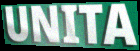
UNITA